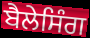
ਬੈਲੇਸਿੰਗ